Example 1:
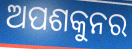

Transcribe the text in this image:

ଅପଶକୁନର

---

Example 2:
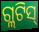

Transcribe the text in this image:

ଗ୍ଲଟିସ୍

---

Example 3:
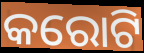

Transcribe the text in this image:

କରୋଟି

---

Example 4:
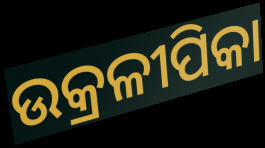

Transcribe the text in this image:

ଉକ୍ରଳୀପିକା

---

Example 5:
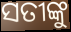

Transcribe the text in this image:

ସତୀଙ୍କୁ